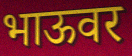
भाऊवर